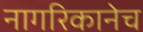
नागरिकानेच